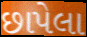
છાપેલા